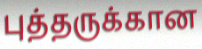
புத்தருக்கான